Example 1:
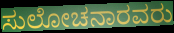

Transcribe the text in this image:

ಸುಲೋಚನಾರವರು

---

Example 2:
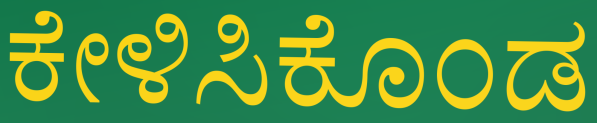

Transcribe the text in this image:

ಕೇಳಿಸಿಕೊಂಡ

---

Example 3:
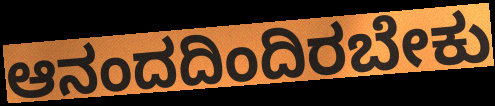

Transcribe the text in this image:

ಆನಂದದಿಂದಿರಬೇಕು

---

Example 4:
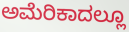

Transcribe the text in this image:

ಅಮೆರಿಕಾದಲ್ಲೂ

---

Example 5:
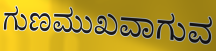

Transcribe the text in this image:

ಗುಣಮುಖವಾಗುವ